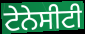
ਟੇਨੇਸੀਟੀ